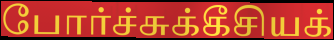
போர்ச்சுக்கீசியக்